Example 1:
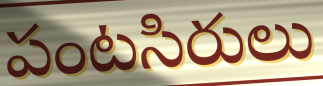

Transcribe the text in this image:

పంటసిరులు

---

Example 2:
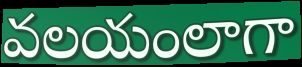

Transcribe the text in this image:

వలయంలాగా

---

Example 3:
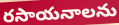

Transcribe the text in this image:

రసాయనాలను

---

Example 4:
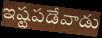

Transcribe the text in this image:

ఇష్టపడేవాడు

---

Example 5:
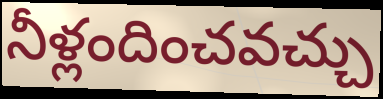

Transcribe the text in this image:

నీళ్లందించవచ్చు